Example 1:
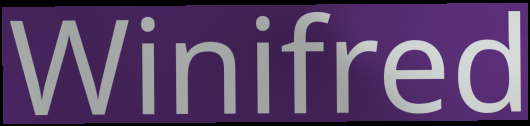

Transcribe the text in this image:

Winifred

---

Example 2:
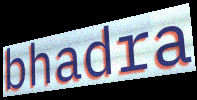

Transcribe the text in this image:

bhadra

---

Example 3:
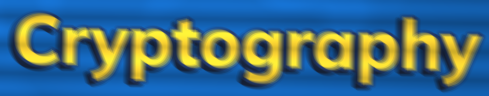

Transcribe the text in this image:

Cryptography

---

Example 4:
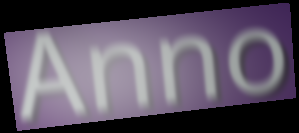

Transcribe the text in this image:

Anno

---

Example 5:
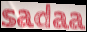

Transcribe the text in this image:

sadaa